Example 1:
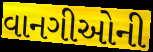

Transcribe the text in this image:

વાનગીઓની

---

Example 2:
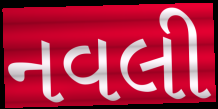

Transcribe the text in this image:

નવલી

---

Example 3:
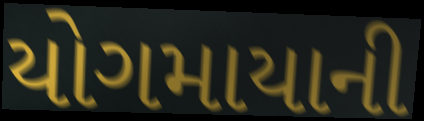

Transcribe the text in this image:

યોગમાયાની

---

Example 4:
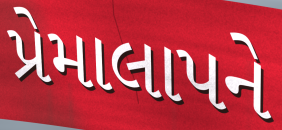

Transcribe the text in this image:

પ્રેમાલાપને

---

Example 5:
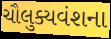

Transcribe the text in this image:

ચૌલુક્યવંશના